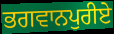
ਭਗਵਾਨਪੁਰੀਏ